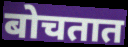
बोचतात